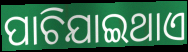
ପାଚିଯାଇଥାଏ